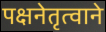
पक्षनेतृत्वाने